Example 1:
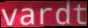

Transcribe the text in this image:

vardt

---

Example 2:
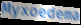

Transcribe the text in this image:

Myxoedema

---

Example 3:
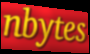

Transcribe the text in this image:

nbytes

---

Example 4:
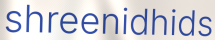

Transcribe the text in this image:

shreenidhids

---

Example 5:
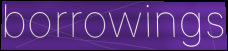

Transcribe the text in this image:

borrowings